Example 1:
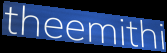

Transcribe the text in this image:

theemithi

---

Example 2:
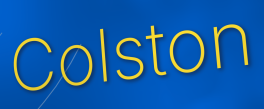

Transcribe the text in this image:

Colston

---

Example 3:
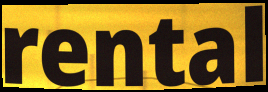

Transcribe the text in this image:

rental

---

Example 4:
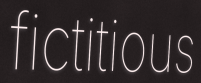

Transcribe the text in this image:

fictitious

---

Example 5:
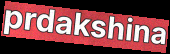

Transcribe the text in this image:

prdakshina